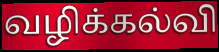
வழிக்கல்வி